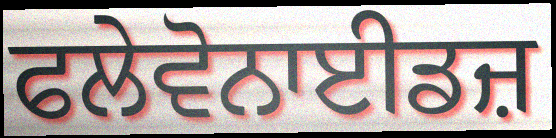
ਫਲੇਵੋਨਾਈਡਜ਼